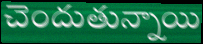
చెందుతున్నాయి